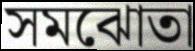
সমঝোতা